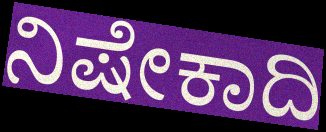
ನಿಷೇಕಾದಿ